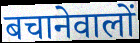
बचानेवालों